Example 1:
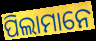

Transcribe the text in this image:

ପିଲାମାନେ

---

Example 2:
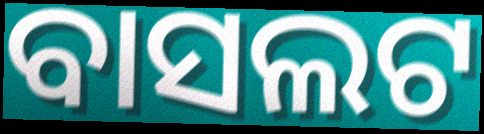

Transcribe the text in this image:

ବାସଲଟ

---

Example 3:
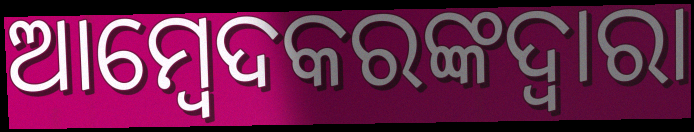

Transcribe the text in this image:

ଆମ୍ବେଦକରଙ୍କଦ୍ୱାରା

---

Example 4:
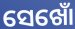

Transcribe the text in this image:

ସେଖୋଁ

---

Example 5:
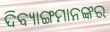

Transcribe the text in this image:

ଦିବ୍ୟାଙ୍ଗମାନଙ୍କର